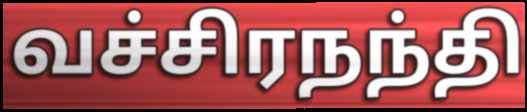
வச்சிரநந்தி